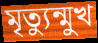
মৃত্যুন্মুখ